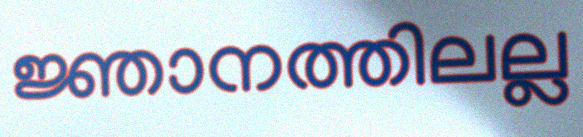
ജ്ഞാനത്തിലല്ല